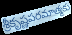
శ్రీకృష్ణపరమాత్మకు